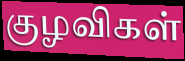
குழவிகள்